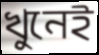
খুনেই